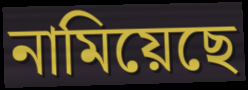
নামিয়েছে